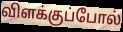
விளக்குப்போல்